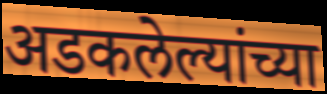
अडकलेल्यांच्या